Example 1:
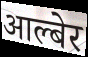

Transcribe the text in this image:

आल्बेर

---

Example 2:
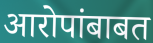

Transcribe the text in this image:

आरोपांबाबत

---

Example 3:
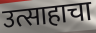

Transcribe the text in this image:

उत्साहाचा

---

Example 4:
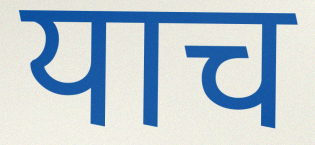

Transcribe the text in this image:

याच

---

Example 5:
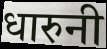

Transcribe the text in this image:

धारुनी